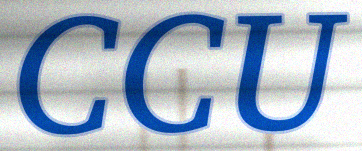
CCU